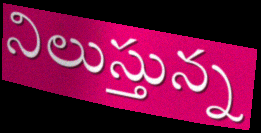
నిలుస్తున్న